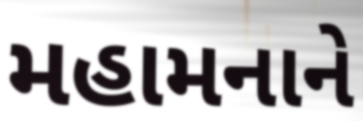
મહામનાને